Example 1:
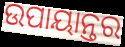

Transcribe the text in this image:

ଉପାୟାନ୍ତର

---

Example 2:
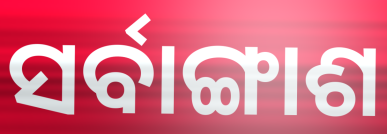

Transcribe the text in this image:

ସର୍ବାଙ୍ଗାଶ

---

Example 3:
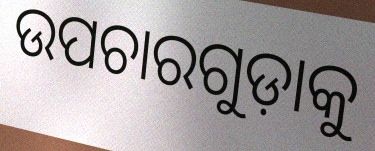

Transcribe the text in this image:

ଉପଚାରଗୁଡ଼ାକୁ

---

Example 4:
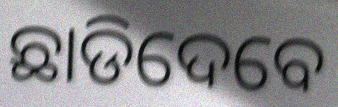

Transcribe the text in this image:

ଛାଡିଦେବେ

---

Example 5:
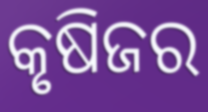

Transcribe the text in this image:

କୃଷିଜର